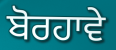
ਬੋਰਹਾਵੇ